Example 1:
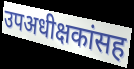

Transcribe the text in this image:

उपअधीक्षकांसह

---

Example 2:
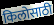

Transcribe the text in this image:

किलोसाठी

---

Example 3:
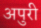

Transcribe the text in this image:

अपुरी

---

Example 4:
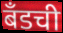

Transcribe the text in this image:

बँडची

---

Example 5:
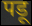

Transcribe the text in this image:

पडू